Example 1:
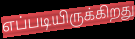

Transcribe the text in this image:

எப்படியிருக்கிறது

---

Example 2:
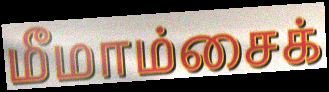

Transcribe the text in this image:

மீமாம்சைக்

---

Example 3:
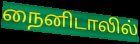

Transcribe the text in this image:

நைனிடாலில்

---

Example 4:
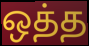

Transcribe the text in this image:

ஒத்த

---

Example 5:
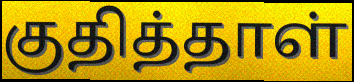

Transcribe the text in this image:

குதித்தாள்